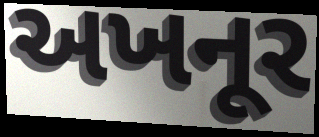
અખનૂર